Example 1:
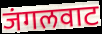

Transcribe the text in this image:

जंगलवाट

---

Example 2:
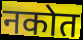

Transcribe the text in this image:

नकोत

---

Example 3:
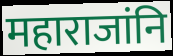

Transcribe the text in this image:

महाराजांनि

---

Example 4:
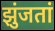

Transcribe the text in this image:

झुंजतां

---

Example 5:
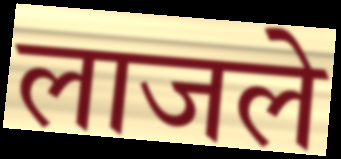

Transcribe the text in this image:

लाजले